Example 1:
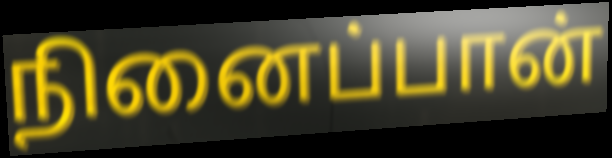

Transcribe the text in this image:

நினைப்பான்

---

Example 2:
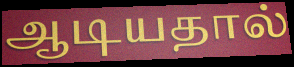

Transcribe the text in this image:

ஆடியதால்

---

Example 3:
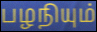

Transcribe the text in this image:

பழநியும்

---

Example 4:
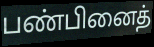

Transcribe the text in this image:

பண்பினைத்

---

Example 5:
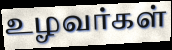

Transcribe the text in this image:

உழவர்கள்